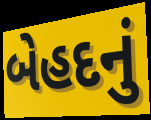
બેહદનું